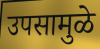
उपसामुळे